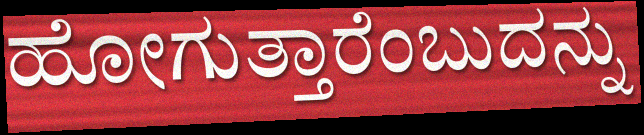
ಹೋಗುತ್ತಾರೆಂಬುದನ್ನು